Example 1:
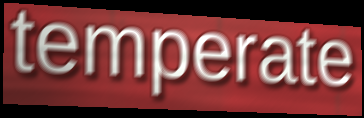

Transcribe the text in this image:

temperate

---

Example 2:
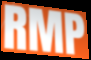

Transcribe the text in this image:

RMP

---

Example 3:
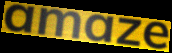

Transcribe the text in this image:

amaze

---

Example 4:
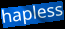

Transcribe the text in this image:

hapless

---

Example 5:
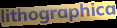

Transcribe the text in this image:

lithographica